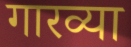
गारव्या